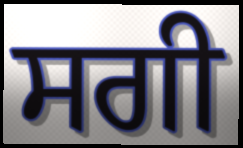
ਸਗੀ